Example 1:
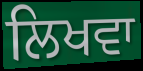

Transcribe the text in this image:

ਲਿਖਵਾ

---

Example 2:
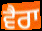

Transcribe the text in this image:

ਵੈਰਾ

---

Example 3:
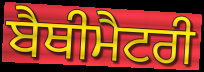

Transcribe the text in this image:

ਬੈਥੀਮੈਟਰੀ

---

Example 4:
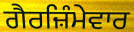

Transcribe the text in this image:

ਗੈਰਜ਼ਿੰਮੇਵਾਰ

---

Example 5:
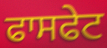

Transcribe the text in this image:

ਫਾਸਫੇਟ